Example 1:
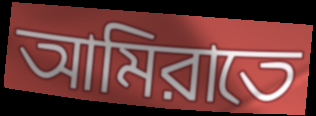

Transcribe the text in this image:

আমিরাতে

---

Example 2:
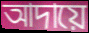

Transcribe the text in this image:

আদায়ে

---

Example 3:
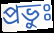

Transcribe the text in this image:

প্রভুঃ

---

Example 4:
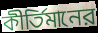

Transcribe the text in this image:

কীর্তিমানের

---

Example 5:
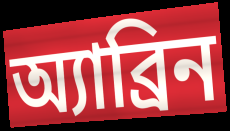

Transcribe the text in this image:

অ্যাব্রিন